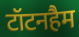
टॉटनहैम